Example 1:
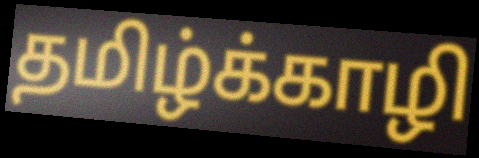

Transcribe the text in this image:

தமிழ்க்காழி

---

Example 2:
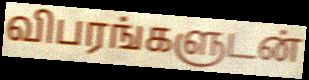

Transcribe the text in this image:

விபரங்களுடன்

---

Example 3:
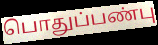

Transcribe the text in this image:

பொதுப்பண்பு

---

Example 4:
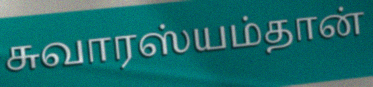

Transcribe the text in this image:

சுவாரஸ்யம்தான்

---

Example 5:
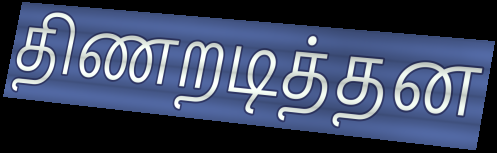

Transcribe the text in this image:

திணறடித்தன